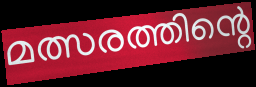
മത്സരത്തിന്റെ